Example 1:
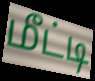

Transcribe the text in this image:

மீட்டி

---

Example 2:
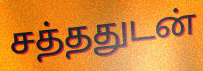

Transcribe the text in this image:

சத்ததுடன்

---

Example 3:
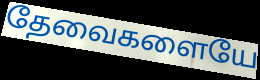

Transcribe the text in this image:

தேவைகளையே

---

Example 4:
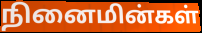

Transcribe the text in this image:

நினைமின்கள்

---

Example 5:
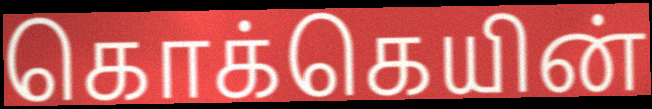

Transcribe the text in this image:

கொக்கெயின்